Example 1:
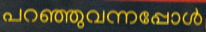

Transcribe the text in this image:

പറഞ്ഞുവന്നപ്പോൾ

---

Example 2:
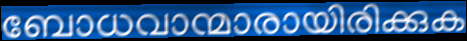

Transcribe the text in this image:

ബോധവാന്മാരായിരിക്കുക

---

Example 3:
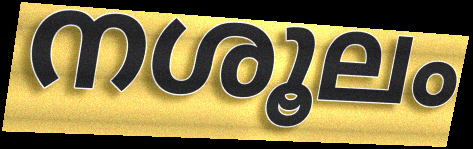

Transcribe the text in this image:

നശൂലം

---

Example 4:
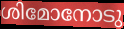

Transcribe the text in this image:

ശിമോനോടു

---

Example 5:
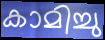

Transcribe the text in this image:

കാമിച്ചു